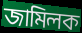
জামিলক